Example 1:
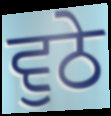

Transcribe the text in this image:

ਵੁਠੇ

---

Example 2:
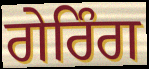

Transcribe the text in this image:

ਗੇਰਿੰਗ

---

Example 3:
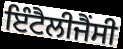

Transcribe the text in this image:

ਇੰਟੈਲੀਜੈਂਸੀ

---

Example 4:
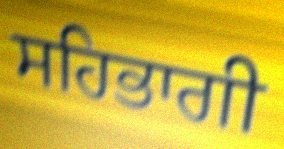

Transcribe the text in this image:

ਸਹਿਭਾਗੀ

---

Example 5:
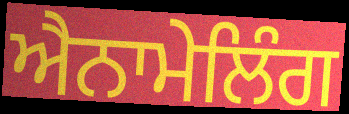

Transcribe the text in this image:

ਐਨਾਮੇਲਿੰਗ